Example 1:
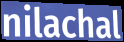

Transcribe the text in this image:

nilachal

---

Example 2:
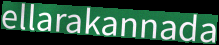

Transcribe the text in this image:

ellarakannada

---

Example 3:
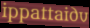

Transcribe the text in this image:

ippattaidu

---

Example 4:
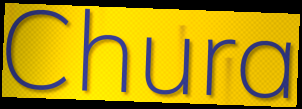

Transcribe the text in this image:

Chura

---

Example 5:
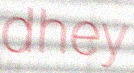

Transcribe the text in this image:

dhey